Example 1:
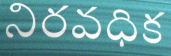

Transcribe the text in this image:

నిరవధిక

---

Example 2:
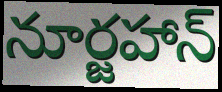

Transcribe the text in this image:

నూర్జహాన్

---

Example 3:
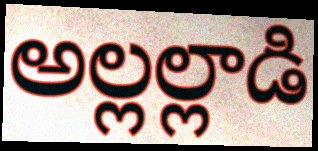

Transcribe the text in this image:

అల్లల్లాడి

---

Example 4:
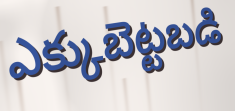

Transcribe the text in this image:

ఎక్కుబెట్టబడి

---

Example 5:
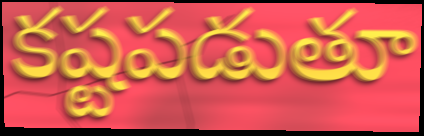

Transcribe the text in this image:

కష్టపడుతూ